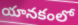
యానకంలో